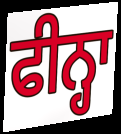
ਫੀਨ੍ਹਾ